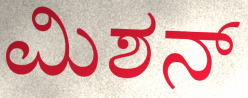
ಮಿಶನ್